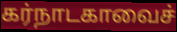
கர்நாடகாவைச்